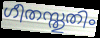
ഗീതസ്തുതിം